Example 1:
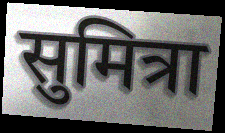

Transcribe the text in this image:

सुमित्रा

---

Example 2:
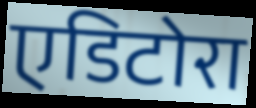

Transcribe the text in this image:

एडिटोरा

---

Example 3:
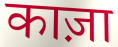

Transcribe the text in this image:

काज़ा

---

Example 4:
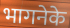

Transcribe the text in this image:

भागनेके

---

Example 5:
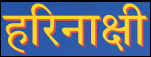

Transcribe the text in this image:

हरिनाक्षी